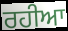
ਰਹੀਆ